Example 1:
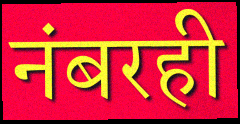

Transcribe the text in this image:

नंबरही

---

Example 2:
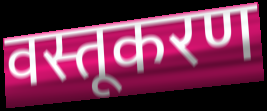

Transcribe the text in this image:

वस्तूकरण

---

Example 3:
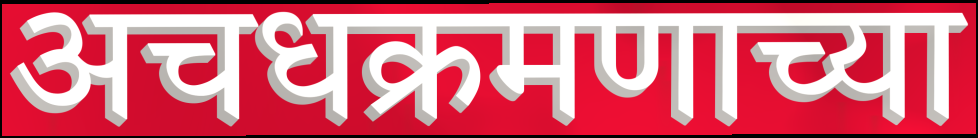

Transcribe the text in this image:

अचधक्रमणाच्या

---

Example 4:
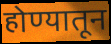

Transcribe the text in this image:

होण्यातून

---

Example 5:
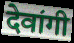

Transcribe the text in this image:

देवांगी